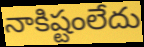
నాకిష్టంలేదు